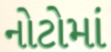
નોટોમાં